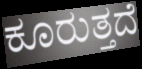
ಕೂರುತ್ತದೆ